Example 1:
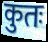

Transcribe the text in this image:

कुतः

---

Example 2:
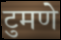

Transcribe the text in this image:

टुमणे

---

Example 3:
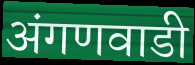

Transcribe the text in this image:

अंगणवाडी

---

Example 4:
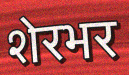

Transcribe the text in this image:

शेरभर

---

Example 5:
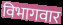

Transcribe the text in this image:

विभागवार